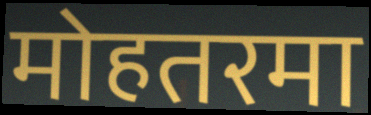
मोहतरमा